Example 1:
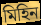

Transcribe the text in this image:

মিহিন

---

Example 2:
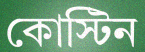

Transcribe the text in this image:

কোস্টিন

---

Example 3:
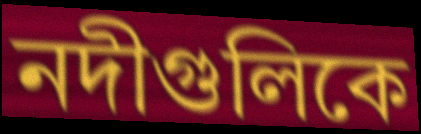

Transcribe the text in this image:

নদীগুলিকে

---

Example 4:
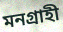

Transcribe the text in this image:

মনগ্রাহী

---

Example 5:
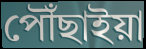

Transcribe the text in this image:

পৌঁছাইয়া